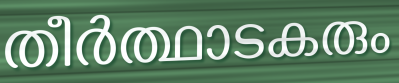
തീർത്ഥാടകരും